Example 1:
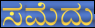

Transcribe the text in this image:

ಸಮೆದು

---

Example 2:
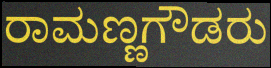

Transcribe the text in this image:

ರಾಮಣ್ಣಗೌಡರು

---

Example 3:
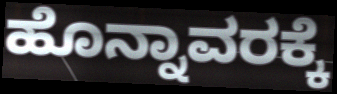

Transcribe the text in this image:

ಹೊನ್ನಾವರಕ್ಕೆ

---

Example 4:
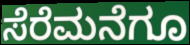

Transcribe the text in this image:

ಸೆರೆಮನೆಗೂ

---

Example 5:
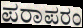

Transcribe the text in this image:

ಪರಾಪರಂ